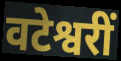
वटेश्वरीं